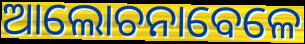
ଆଲୋଚନାବେଳେ